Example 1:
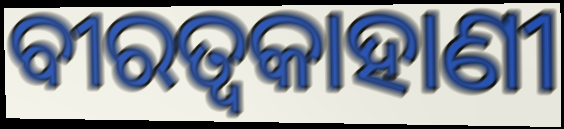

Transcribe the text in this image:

ବୀରତ୍ୱକାହାଣୀ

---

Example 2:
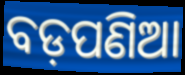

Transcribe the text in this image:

ବଡ଼ପଣିଆ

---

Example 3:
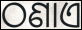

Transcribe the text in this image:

ଠଣାଏ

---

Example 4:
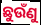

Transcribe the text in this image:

ଛୁଉଁଣୁ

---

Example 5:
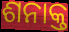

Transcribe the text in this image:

ଶନାକ୍ତ